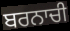
ਬਰਨਾਚੀ